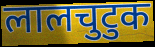
लालचुटुक